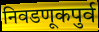
निवडणूकपुर्व